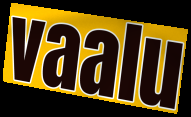
vaalu